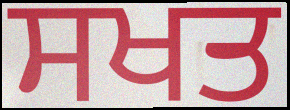
ਸਖਤ